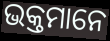
ଭକ୍ତମାନେ